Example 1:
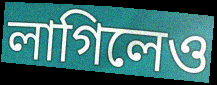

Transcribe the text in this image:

লাগিলেও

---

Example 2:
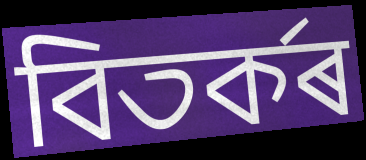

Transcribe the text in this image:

বিতৰ্কৰ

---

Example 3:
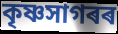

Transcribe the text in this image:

কৃষ্ণসাগৰৰ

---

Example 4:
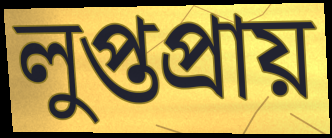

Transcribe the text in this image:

লুপ্তপ্ৰায়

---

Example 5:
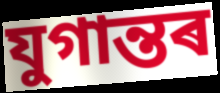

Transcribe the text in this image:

যুগান্তৰ